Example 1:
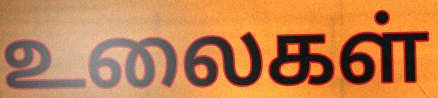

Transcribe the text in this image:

உலைகள்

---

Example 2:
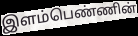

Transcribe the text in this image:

இளம்பெண்ணின்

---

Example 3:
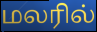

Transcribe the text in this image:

மலரில்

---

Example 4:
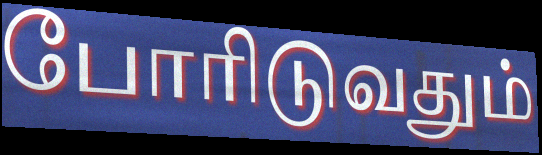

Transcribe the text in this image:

போரிடுவதும்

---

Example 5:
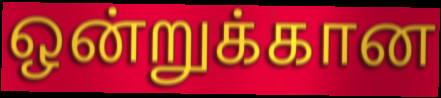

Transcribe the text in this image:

ஒன்றுக்கான